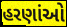
હરણાંઓ